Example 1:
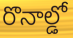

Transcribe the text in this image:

రొనాల్డో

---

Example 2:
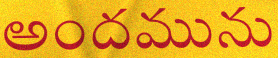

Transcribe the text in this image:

అందమును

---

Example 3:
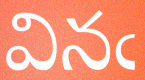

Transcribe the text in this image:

వినఁ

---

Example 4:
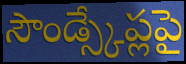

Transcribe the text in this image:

సౌండ్స్కేప్లపై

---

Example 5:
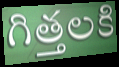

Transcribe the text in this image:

గిత్తలకి